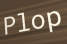
Plop